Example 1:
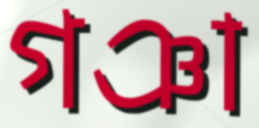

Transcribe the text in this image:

গঞা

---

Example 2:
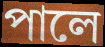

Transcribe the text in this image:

পালে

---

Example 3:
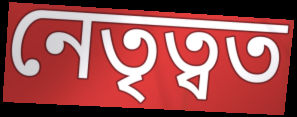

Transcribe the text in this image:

নেতৃত্বত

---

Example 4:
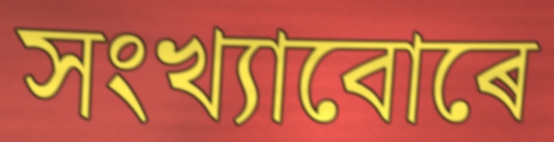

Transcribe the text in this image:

সংখ্যাবোৰে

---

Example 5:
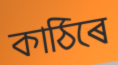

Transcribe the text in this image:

কাঠিৰে